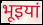
भूइयां